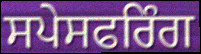
ਸਪੇਸਫਰਿੰਗ